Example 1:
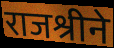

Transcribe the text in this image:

राजश्रीने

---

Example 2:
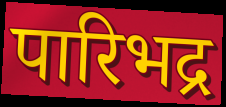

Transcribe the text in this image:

पारिभद्र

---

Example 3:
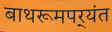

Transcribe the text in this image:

बाथरूमपर्यंत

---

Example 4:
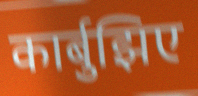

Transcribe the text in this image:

कार्बुझिए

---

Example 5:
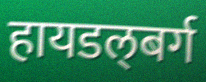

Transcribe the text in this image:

हायडल्‌बर्ग